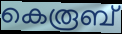
കെരൂബ്